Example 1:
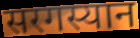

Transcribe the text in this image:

सरगस्यान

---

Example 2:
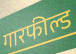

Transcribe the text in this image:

गारफील्ड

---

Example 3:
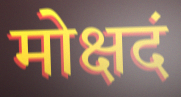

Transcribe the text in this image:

मोक्षदं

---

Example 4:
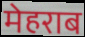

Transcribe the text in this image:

मेहराब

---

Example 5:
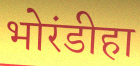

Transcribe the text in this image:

भोरंडीहा